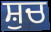
ਸ਼ੁਚ